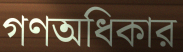
গণঅধিকার